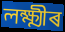
লক্ষ্মীৰ